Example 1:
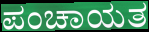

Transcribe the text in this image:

ಪಂಚಾಯತ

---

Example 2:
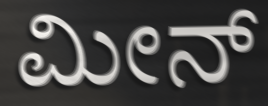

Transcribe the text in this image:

ಮೀನ್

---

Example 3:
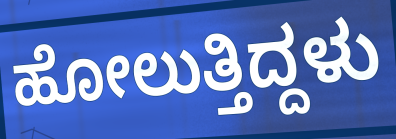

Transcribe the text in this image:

ಹೋಲುತ್ತಿದ್ದಳು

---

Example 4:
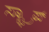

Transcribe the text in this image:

ಸ್ಟ್ರಾಪ್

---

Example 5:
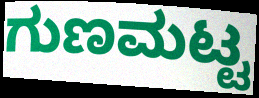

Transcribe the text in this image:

ಗುಣಮಟ್ಟ